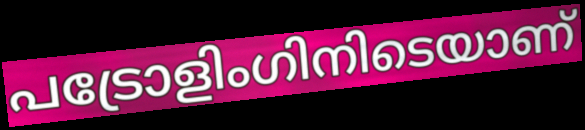
പട്രോളിംഗിനിടെയാണ്